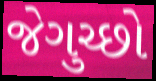
જેગુચ્છો